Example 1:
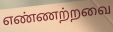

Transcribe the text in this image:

எண்ணற்றவை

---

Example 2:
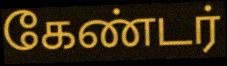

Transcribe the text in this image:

கேண்டர்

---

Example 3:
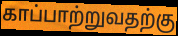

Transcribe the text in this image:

காப்பாற்றுவதற்கு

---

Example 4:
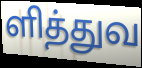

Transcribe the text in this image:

ளித்துவ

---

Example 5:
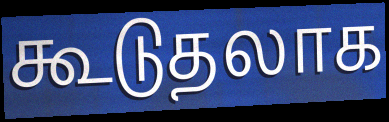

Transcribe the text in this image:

கூடுதலாக